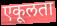
एकूलता